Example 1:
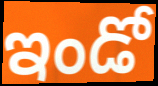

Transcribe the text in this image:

ఇండో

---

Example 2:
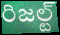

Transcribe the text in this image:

రిజల్ట్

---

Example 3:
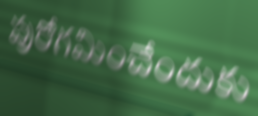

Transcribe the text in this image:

పురోగమించేందుకు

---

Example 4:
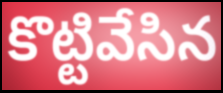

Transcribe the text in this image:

కొట్టివేసిన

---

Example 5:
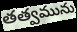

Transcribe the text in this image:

తత్వమును